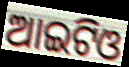
ଆଇଟିଓ